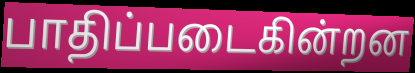
பாதிப்படைகின்றன